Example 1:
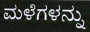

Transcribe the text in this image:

ಮಳೆಗಳನ್ನು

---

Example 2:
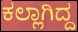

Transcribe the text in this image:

ಕಲ್ಲಾಗಿದ್ದ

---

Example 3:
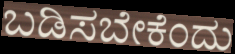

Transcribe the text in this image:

ಬಡಿಸಬೇಕೆಂದು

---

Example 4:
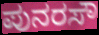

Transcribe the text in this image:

ಪುನರಸೌ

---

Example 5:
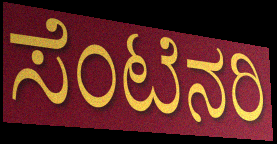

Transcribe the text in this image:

ಸೆಂಟೆನರಿ